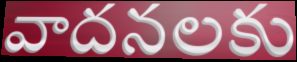
వాదనలకు